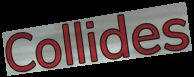
Collides